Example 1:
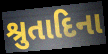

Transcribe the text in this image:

શ્રુતાદિના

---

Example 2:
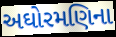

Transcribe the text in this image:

અઘોરમણિના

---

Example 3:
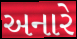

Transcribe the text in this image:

અનારે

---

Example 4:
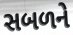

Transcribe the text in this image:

સબળને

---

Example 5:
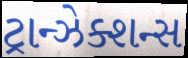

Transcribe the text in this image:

ટ્રાન્ઝેક્શન્સ